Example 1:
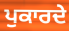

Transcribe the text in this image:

ਪੁਕਾਰਦੇ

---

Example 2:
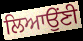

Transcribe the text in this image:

ਲਿਆਉਂਣੀ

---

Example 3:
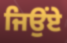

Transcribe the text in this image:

ਜਿਉਂਏ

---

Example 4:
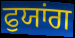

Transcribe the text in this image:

ਫੁਯਾਂਗ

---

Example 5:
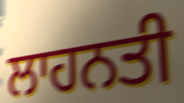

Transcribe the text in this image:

ਲਾਹਨਤੀ